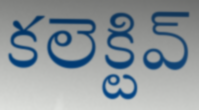
కలెక్టివ్